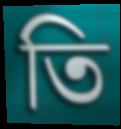
তি